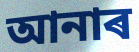
আনাৰ